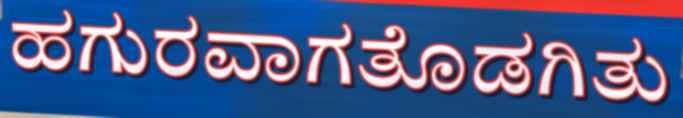
ಹಗುರವಾಗತೊಡಗಿತು